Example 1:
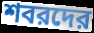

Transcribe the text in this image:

শবরদের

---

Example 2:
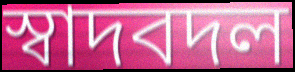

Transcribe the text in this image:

স্বাদবদল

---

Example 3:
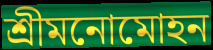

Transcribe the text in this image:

শ্রীমনোমোহন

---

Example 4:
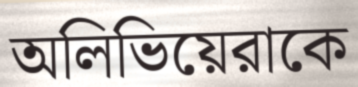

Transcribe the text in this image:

অলিভিয়েরাকে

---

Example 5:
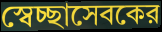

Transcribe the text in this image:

স্বেচ্ছাসেবকের